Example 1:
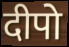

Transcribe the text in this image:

दीपो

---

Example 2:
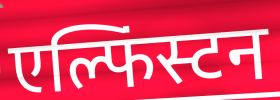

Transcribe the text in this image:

एल्फिंस्टन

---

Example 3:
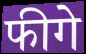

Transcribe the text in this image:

फीगे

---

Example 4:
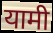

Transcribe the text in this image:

यामी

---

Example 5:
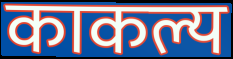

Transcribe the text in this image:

काकल्य